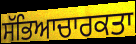
ਸੱਭਿਆਚਾਰਕਤਾ